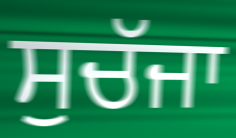
ਸੁਚੱਜਾ